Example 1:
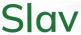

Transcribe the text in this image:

Slav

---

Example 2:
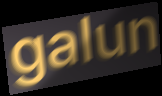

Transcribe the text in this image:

galun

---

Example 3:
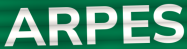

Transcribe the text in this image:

ARPES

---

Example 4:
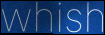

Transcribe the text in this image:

whish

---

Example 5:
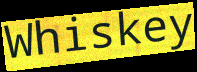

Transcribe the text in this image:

Whiskey